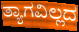
ತ್ಯಾಗವಿಲ್ಲದ